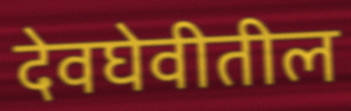
देवघेवीतील